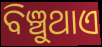
ବିଞ୍ଚୁଥାଏ